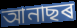
আনাছৰ